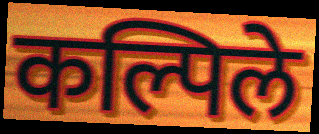
कल्पिले